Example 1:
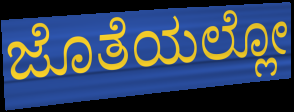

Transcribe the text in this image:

ಜೊತೆಯಲ್ಲೋ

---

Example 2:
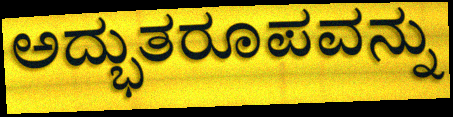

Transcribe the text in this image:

ಅದ್ಭುತರೂಪವನ್ನು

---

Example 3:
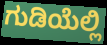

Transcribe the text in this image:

ಗುಡಿಯೆಲ್ಲಿ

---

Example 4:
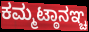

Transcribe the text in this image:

ಕಮ್ಮಟ್ಠಾನಞ್ಚ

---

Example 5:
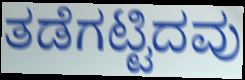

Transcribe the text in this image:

ತಡೆಗಟ್ಟಿದವು